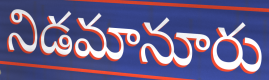
నిడమానూరు